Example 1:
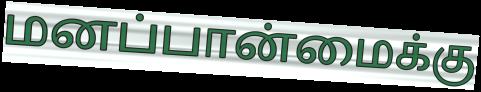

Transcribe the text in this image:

மனப்பான்மைக்கு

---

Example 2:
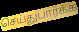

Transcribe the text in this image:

செய்துபார்க்க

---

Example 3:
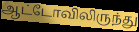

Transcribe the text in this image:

ஆட்டோவிலிருந்து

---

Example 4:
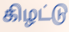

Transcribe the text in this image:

கிழட்டு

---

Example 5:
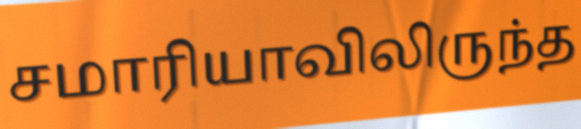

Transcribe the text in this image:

சமாரியாவிலிருந்த